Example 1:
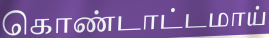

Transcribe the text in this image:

கொண்டாட்டமாய்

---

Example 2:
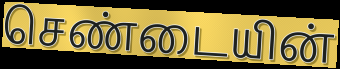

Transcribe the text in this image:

செண்டையின்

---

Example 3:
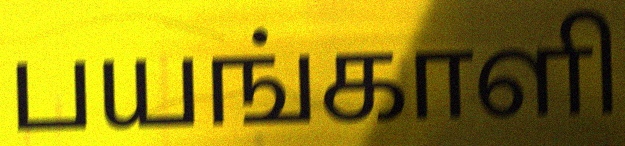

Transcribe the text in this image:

பயங்காளி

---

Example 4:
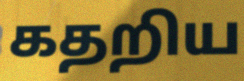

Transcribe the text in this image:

கதறிய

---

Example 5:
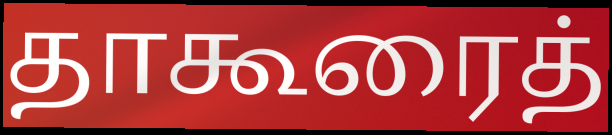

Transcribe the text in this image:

தாகூரைத்